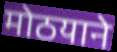
मोठयाने